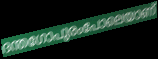
ദന്തഗോപുരംപോലെയാണ്